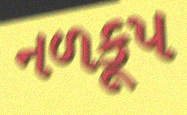
નળકૂપ